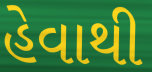
હેવાથી